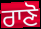
ਰਾਣੋ